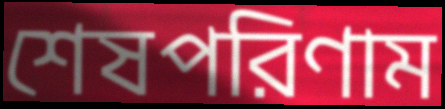
শেষপরিণাম